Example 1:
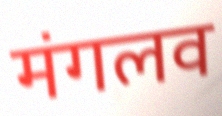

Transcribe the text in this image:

मंगलव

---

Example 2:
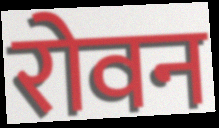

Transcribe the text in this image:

रोवन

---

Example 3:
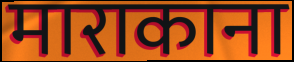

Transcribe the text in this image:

माराकाना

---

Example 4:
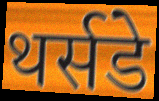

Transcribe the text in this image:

थर्सडे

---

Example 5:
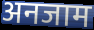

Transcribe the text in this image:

अनजाम